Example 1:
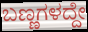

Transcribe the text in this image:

ಬಣ್ಣಗಳದ್ದೇ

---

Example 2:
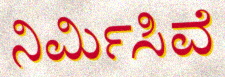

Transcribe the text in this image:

ನಿರ್ಮಿಸಿವೆ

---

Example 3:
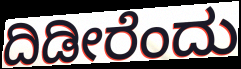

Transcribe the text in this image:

ದಿಡೀರೆಂದು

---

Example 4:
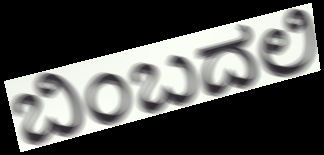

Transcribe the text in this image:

ಬಿಂಬದಲಿ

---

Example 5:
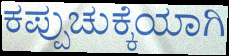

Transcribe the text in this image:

ಕಪ್ಪುಚುಕ್ಕೆಯಾಗಿ